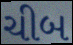
ચીબ